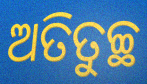
ଅତିତୁଚ୍ଛ